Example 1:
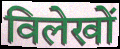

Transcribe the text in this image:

विलेखों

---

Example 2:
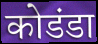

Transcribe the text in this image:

कोडंडा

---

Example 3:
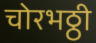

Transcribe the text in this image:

चोरभठ्ठी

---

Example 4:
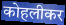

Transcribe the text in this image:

कोहलीकर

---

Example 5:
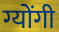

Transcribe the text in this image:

ग्योंगी